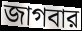
জাগবার